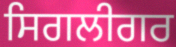
ਸਿਗਲੀਗਰ